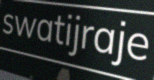
swatijraje